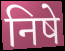
निषे